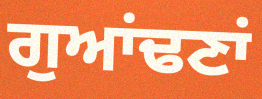
ਗੁਆਂਢਣਾਂ